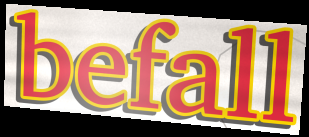
befall